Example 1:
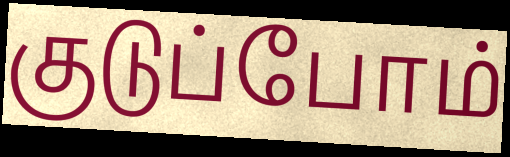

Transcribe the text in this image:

குடுப்போம்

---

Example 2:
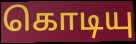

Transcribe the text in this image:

கொடியு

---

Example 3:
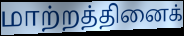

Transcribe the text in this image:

மாற்றத்தினைக்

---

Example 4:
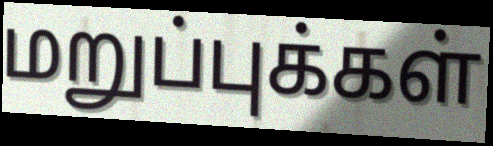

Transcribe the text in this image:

மறுப்புக்கள்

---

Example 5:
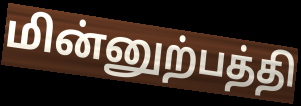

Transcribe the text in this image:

மின்னுற்பத்தி